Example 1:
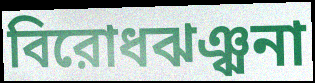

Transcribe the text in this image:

বিরোধঝঞ্ঝনা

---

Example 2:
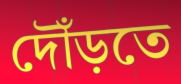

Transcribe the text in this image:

দৌঁড়তে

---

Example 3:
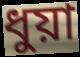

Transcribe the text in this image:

ধুয়া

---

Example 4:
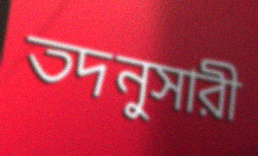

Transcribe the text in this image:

তদনুসারী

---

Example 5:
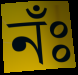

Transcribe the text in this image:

নঁঃ